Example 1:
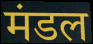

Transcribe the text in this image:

मंडल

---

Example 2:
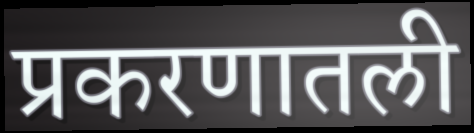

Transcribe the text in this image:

प्रकरणातली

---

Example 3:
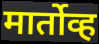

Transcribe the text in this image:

मार्तोव्ह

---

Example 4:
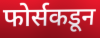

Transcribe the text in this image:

फोर्सकडून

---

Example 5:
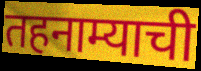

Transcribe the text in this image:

तहनाम्याची